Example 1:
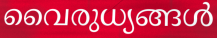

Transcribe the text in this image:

വൈരുധ്യങ്ങൾ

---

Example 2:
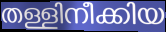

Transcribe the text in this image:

തള്ളിനീക്കിയ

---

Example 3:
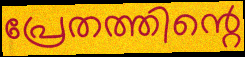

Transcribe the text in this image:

പ്രേതത്തിന്റെ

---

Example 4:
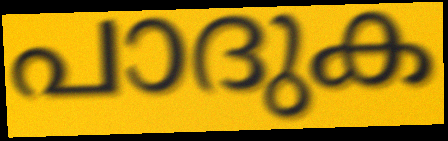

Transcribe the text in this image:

പാദുക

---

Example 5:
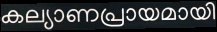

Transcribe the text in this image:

കല്യാണപ്രായമായി